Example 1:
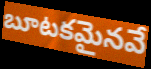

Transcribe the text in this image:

బూటకమైనవే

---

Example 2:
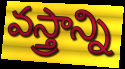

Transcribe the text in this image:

వస్త్రాన్ని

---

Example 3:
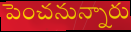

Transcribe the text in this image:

పెంచనున్నారు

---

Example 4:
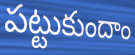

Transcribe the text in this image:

పట్టుకుందాం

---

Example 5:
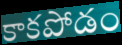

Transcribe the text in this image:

కాకపోడం